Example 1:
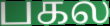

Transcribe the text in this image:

பகல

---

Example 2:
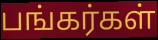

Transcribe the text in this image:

பங்கர்கள்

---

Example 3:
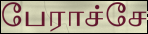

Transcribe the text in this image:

பேராச்சே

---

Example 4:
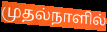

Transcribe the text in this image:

முதல்நாளில்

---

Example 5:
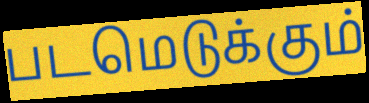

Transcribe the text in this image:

படமெடுக்கும்